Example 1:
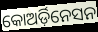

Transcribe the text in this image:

କୋଅର୍ଡ଼ିନେସନ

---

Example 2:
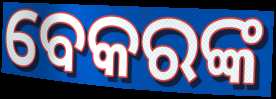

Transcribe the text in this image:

ବେକରଙ୍କ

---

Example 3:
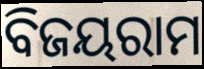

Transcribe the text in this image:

ବିଜୟରାମ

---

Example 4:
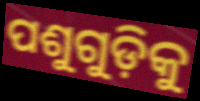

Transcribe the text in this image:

ପଶୁଗୁଡ଼ିକୁ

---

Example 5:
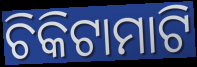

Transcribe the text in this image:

ଚିକିଟାମାଟି